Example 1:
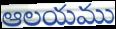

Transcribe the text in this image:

ఆలయము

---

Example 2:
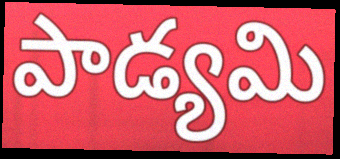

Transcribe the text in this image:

పాడ్యమి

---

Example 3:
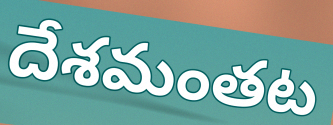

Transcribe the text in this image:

దేశమంతట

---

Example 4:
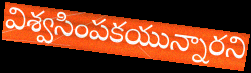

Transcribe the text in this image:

విశ్వసింపకయున్నారని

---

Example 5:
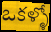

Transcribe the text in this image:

ఒకళ్ళో